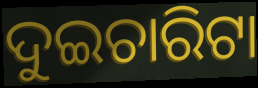
ଦୁଇଚାରିଟା